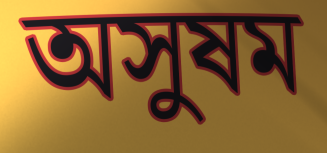
অসুষম